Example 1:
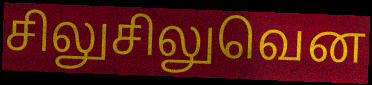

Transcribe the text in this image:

சிலுசிலுவென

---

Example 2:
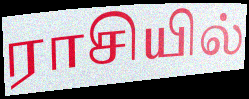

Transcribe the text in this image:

ராசியில்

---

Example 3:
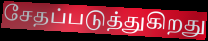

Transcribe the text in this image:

சேதப்படுத்துகிறது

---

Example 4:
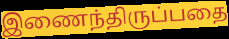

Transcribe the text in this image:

இணைந்திருப்பதை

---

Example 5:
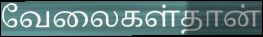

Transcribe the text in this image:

வேலைகள்தான்